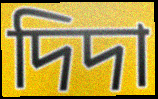
দিদা